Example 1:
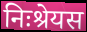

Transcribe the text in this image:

निःश्रेयस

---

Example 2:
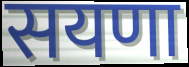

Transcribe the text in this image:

सयणा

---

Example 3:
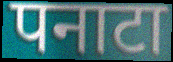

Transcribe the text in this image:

पनाटा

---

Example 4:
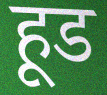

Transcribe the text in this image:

हूड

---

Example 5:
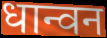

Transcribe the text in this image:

धान्वन